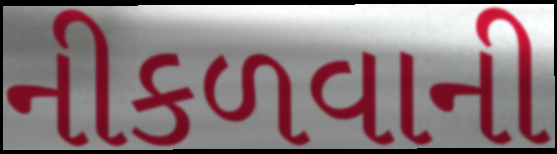
નીકળવાની